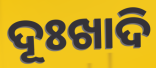
ଦୂଃଖାଦି